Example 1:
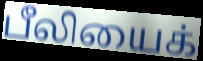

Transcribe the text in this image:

பீலியைக்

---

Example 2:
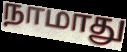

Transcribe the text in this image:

நாமாது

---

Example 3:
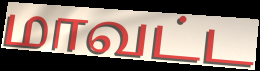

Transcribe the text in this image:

மாவட்ட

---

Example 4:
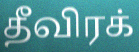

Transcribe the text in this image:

தீவிரக்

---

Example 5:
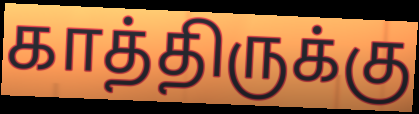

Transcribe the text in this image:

காத்திருக்கு